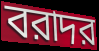
বরাদর